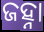
ଜହ୍ନା